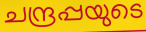
ചന്ദ്രപ്പയുടെ